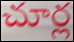
చూర్ల